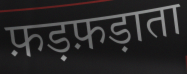
फ़ड़फ़ड़ाता